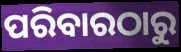
ପରିବାରଠାରୁ